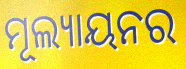
ମୂଲ୍ୟାୟନର